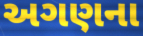
અગણના